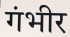
गंभीर